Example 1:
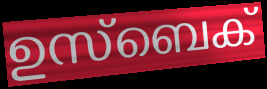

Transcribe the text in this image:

ഉസ്ബെക്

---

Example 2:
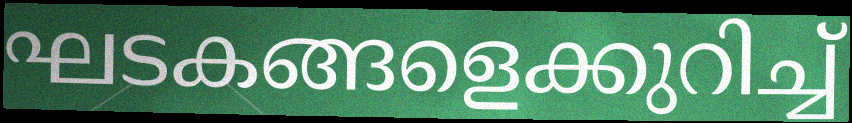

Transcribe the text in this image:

ഘടകങ്ങളെക്കുറിച്ച്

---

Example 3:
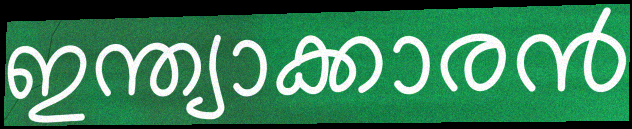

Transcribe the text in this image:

ഇന്ത്യാക്കാരൻ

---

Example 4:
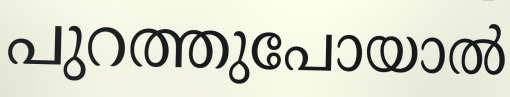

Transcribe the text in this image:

പുറത്തുപോയാൽ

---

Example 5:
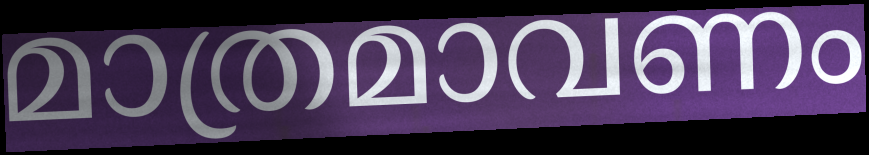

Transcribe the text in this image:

മാത്രമാവണം